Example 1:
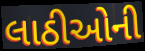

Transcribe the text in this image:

લાઠીઓની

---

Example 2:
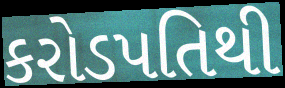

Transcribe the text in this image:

કરોડપતિથી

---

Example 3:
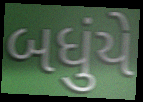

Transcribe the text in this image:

બધુંયે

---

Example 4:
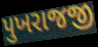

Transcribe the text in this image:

પુખરાજજી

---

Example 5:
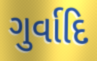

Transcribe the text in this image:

ગુર્વાદિ